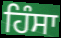
ਹਿੰਸਾ